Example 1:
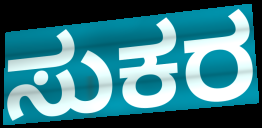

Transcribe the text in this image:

ಸುಕರ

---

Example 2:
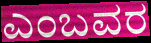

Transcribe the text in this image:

ಎಂಬವರ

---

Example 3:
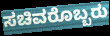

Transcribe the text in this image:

ಸಚಿವರೊಬ್ಬರು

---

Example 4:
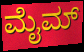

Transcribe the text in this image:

ಮೈಮ್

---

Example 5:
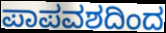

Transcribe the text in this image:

ಪಾಪವಶದಿಂದ